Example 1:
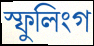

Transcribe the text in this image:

স্ফুলিংগ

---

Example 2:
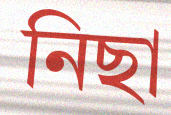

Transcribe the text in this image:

নিছা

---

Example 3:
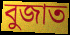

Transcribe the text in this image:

বুজাত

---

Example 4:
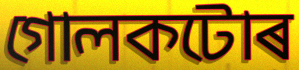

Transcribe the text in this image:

গোলকটোৰ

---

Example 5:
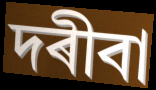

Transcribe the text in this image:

দৰীবা